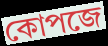
কোপজে